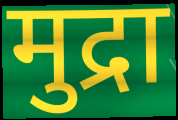
मुद्रा